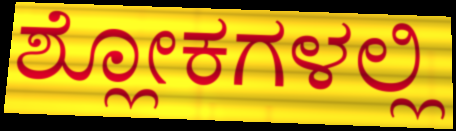
ಶ್ಲೋಕಗಳಲ್ಲಿ